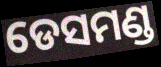
ଡେସମଣ୍ଡ